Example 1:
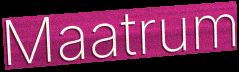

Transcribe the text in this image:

Maatrum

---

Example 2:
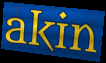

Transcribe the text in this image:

akin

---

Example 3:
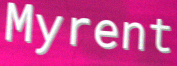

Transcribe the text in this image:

Myrent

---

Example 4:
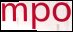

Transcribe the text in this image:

mpo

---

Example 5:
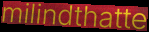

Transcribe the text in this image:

milindthatte